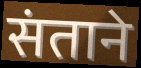
संताने